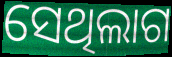
ସେଥିଲାଗ